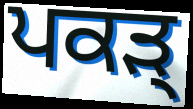
ਪਕੜ੍